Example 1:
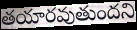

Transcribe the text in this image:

తయారవుతుందని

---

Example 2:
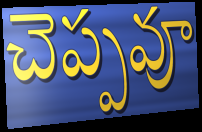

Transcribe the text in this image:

చెప్పవూ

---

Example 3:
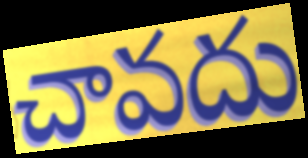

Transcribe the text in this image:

చావదు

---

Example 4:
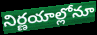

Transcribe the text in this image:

నిర్ణయాల్లోనూ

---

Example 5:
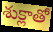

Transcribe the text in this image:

శుక్లాతో